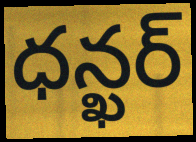
ధన్ఖర్